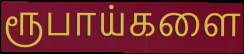
ரூபாய்களை